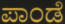
ಪಾಂಡೆ